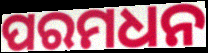
ପରମଧନ